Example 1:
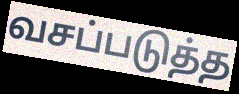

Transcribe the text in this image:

வசப்படுத்த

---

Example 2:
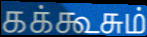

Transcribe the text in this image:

கக்கூசும்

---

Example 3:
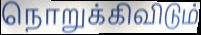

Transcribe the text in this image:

நொறுக்கிவிடும்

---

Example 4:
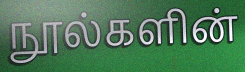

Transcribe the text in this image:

நூல்களின்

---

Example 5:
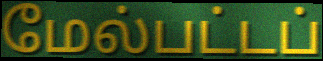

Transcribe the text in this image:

மேல்பட்டப்